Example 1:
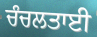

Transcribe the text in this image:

ਚੰਚਲਤਾਈ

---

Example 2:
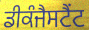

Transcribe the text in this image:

ਡੀਕੰਜੈਸਟੈਂਟ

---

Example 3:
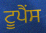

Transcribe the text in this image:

ਟੂਪੈਂਸ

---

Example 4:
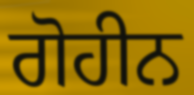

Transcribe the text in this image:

ਗੋਹੀਨ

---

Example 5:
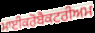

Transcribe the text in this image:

ਮਾਈਕਰੋਬੈਕਟਰੀਅਮ